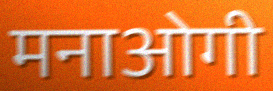
मनाओगी